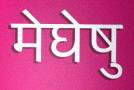
मेघेषु